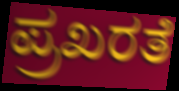
ಪ್ರಖರತೆ